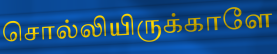
சொல்லியிருக்காளே